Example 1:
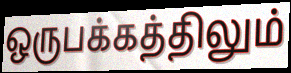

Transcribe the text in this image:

ஒருபக்கத்திலும்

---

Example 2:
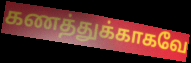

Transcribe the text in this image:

கணத்துக்காகவே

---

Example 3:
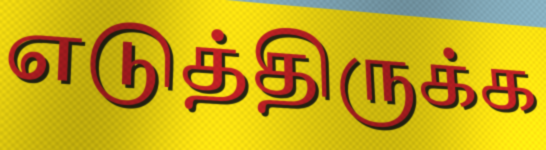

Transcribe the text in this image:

எடுத்திருக்க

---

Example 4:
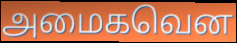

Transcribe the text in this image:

அமைகவென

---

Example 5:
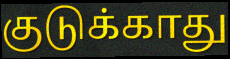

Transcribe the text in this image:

குடுக்காது